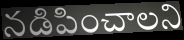
నడిపించాలని